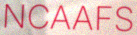
NCAAFS